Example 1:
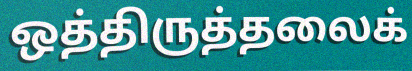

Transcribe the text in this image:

ஒத்திருத்தலைக்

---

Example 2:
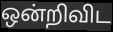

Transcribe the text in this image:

ஒன்றிவிட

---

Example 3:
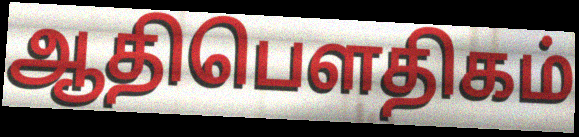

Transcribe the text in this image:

ஆதிபௌதிகம்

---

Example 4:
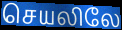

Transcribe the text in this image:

செயலிலே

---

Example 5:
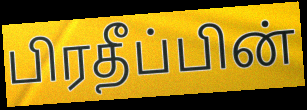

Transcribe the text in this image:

பிரதீப்பின்